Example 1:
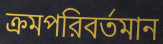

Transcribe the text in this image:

ক্রমপরিবর্তমান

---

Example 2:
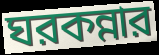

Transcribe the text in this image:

ঘরকন্নার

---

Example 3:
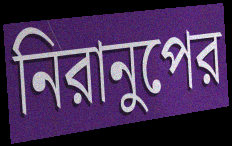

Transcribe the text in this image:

নিরানুপের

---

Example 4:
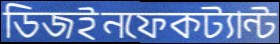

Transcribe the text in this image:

ডিজইনফেকট্যান্ট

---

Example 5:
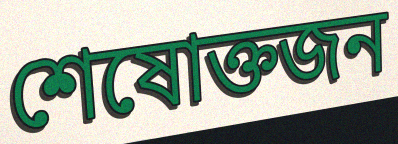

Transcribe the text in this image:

শেষোক্তজন